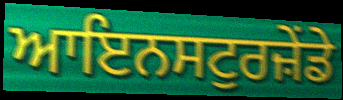
ਆਇਨਸਟੁਰਜ਼ੇਂਡੇ